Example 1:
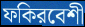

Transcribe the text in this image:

ফকিরবেশী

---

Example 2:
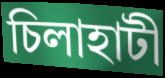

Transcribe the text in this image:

চিলাহাটী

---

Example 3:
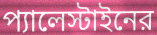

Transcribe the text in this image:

প্যালেস্টাইনের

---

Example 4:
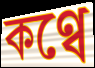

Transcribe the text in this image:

কণ্বে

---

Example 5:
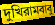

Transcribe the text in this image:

দুখিরামবাবু